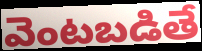
వెంటబడితే